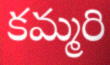
కమ్మరి